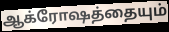
ஆக்ரோஷத்தையும்